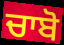
ਚਾਬੋ